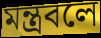
মন্ত্রবলে